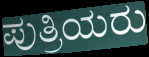
ಪುತ್ರಿಯರು